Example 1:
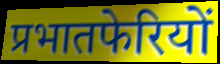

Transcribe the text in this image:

प्रभातफेरियों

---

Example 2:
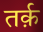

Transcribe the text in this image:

तर्क़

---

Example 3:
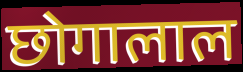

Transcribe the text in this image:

छोगालाल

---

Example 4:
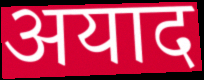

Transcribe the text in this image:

अयाद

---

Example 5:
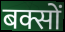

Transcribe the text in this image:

बक्सों